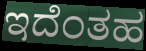
ಇದೆಂತಹ